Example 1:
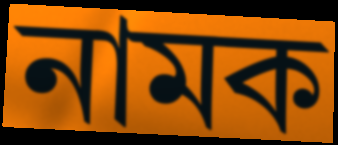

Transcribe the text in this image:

নামক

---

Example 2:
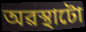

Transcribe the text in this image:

অৱস্থাটো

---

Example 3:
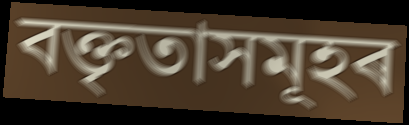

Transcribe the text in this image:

বক্তৃতাসমূহৰ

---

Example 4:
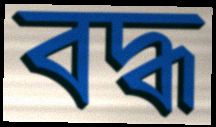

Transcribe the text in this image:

বদ্ধ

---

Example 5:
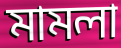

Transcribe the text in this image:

মামলা